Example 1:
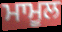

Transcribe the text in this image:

ਮਾਮੂਲ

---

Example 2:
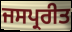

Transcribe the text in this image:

ਜਸਪ੍ਰਰੀਤ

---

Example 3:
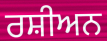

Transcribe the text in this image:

ਰਸ਼ੀਅਨ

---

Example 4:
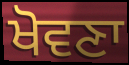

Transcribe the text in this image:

ਖੋਵਣਾ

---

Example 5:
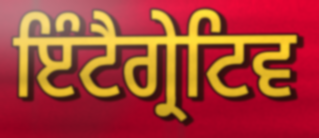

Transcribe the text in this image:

ਇੰਟੈਗ੍ਰੇਟਿਵ